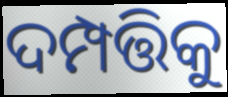
ଦମ୍ପତ୍ତିକୁ